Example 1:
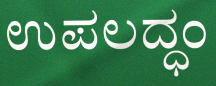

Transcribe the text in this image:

ಉಪಲದ್ಧಂ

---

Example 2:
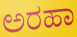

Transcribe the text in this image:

ಅರಹಾ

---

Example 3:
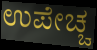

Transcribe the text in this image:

ಉಪೇಚ್ಚ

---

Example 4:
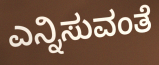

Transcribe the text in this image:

ಎನ್ನಿಸುವಂತೆ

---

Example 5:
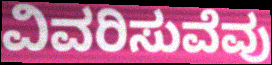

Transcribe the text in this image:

ವಿವರಿಸುವೆವು